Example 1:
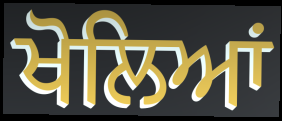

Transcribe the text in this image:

ਖੋਲਿਆਂ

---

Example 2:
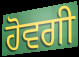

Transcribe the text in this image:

ਹੋਵਗੀ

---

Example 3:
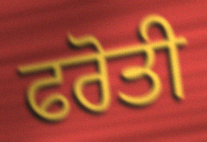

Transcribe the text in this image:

ਫਰੋਤੀ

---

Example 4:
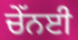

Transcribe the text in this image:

ਚੇੱਨਈ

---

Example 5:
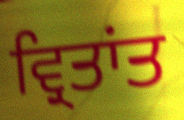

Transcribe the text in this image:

ਵ੍ਰਿਤਾਂਤ